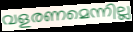
വളരണമെന്നില്ല